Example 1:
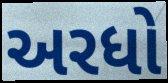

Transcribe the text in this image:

અરધો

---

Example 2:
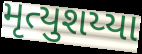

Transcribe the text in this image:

મૃત્યુશય્યા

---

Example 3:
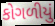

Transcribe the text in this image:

કોગળીયું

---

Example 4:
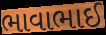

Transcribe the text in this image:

ભાવાભાઈ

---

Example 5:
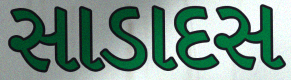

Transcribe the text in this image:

સાડાદસ